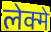
लेक्मे